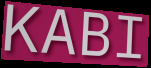
KABI